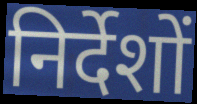
निर्देशों